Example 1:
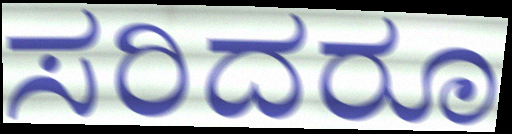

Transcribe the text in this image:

ಸರಿದರೂ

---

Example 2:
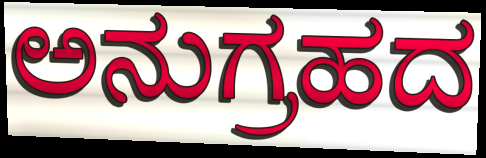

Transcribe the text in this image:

ಅನುಗ್ರಹದ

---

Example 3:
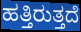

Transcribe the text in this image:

ಹತ್ತಿರುತ್ತದೆ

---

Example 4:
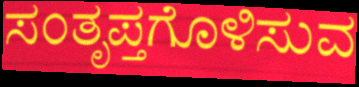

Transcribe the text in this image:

ಸಂತೃಪ್ತಗೊಳಿಸುವ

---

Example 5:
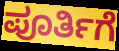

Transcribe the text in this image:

ಪೂರ್ತಿಗೆ